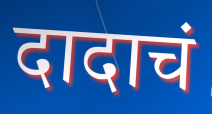
दादाचं